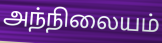
அந்நிலையம்